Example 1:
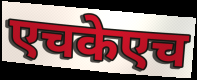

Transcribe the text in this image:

एचकेएच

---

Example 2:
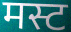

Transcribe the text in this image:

मस्‍ट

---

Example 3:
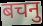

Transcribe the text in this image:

बचनु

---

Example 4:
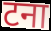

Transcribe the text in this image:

टना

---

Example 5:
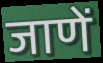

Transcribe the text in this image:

जाणें